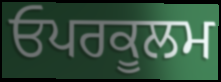
ਓਪਰਕੂਲਮ